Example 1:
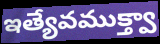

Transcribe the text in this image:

ఇత్యేవముక్త్వా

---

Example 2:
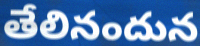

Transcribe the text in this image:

తేలినందున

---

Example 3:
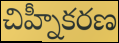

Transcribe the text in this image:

చిహ్నీకరణ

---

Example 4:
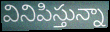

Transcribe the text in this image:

వినిపిస్తున్నా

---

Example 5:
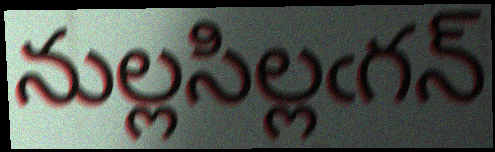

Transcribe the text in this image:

నుల్లసిల్లఁగన్